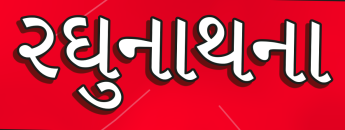
રઘુનાથના